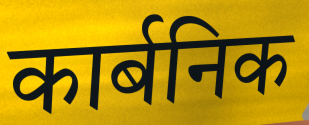
कार्बनिक